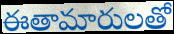
ఈతామారులతో